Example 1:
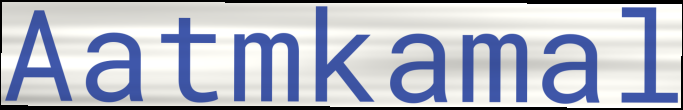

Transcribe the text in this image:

Aatmkamal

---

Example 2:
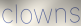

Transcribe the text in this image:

clowns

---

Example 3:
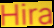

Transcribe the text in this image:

Hira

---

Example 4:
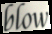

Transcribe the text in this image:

blow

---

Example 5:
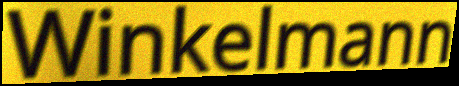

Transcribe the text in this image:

Winkelmann